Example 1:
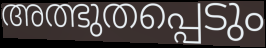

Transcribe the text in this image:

അത്ഭുതപ്പെടും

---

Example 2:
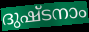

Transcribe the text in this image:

ദുഷ്ടനാം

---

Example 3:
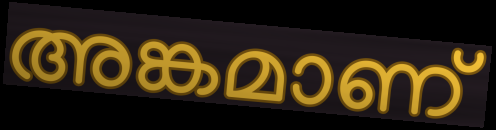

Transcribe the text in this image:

അങ്കമാണ്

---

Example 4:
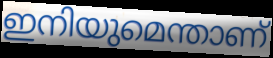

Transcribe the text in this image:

ഇനിയുമെന്താണ്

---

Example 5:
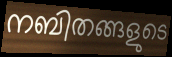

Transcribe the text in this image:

നബിതങ്ങളുടെ